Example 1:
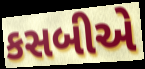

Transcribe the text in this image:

કસબીએ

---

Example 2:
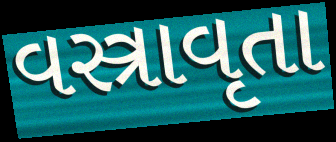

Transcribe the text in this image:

વસ્ત્રાવૃતા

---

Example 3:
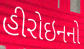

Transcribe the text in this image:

હીરોઇનનો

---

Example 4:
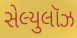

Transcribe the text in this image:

સેલ્યુલૉઝ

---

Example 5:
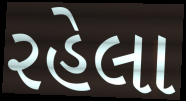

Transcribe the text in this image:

રહેલા